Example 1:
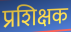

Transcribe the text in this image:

प्रशिक्षक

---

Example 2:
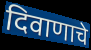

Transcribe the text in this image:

दिवाणाचे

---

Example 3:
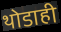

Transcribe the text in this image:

थोडाही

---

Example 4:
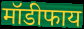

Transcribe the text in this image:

मॉडीफाय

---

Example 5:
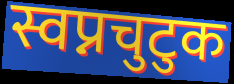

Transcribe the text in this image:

स्वप्नचुटुक